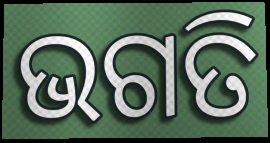
ଭଗତି